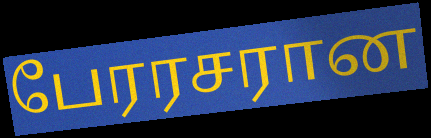
பேரரசரான